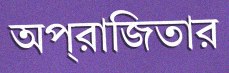
অপ্‌রাজিতার